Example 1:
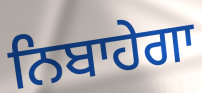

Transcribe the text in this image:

ਨਿਬਾਹੇਗਾ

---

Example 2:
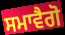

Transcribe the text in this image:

ਸਮਾਵੈਗੋ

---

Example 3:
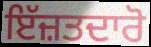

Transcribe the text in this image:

ਇੱਜ਼ਤਦਾਰੋ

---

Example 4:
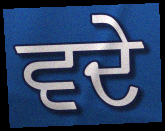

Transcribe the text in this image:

ਵਦੇ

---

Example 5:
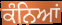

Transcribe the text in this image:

ਕੰਨਿਆਂ